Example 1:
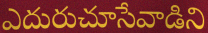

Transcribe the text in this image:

ఎదురుచూసేవాడిని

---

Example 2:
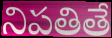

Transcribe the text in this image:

నిపతితే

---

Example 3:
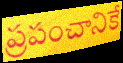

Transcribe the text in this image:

ప్రపంచానికే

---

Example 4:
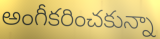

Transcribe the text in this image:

అంగీకరించకున్నా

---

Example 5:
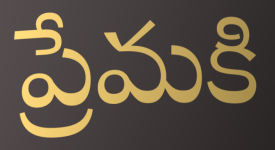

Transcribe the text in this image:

ప్రేమకి